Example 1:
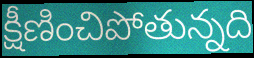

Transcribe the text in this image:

క్షీణించిపోతున్నది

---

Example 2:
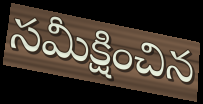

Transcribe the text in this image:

సమీక్షించిన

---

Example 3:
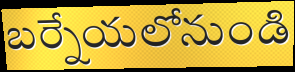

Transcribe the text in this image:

బర్నేయలోనుండి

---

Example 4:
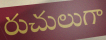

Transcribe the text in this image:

రుచులుగా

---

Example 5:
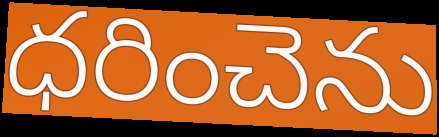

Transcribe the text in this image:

ధరించెను